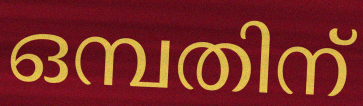
ഒമ്പതിന്